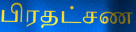
பிரதட்சண